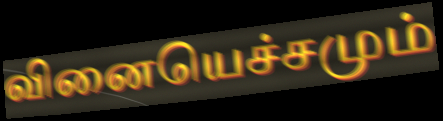
வினையெச்சமும்